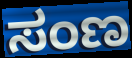
ಸಂಣ